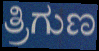
ತ್ರಿಗುಣ